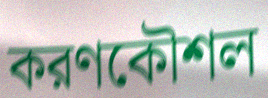
করণকৌশল